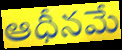
ఆధీనమే